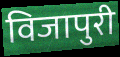
विजापुरी